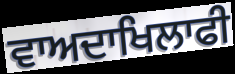
ਵਾਅਦਾਖਿਲਾਫੀ